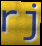
rj